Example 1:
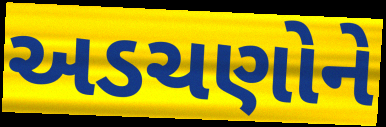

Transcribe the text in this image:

અડચણોને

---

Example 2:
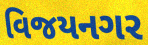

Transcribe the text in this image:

વિજયનગર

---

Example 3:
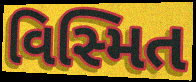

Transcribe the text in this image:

વિસ્મિત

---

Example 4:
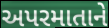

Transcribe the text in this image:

અપરમાતાને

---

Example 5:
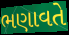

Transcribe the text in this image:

ભણાવતે